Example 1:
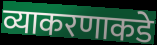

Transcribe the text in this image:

व्याकरणाकडे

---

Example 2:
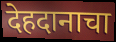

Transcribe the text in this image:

देहदानाचा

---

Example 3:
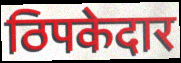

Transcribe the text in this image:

ठिपकेदार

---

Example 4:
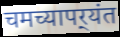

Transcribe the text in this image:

चमच्यापर्यंत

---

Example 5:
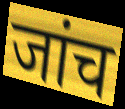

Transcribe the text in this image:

जांच